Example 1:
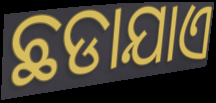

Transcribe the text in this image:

ଛଡାଯାଏ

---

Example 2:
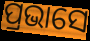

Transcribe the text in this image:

ପ୍ରଭାସେ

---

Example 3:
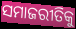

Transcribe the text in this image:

ସମାଜରୀତିକୁ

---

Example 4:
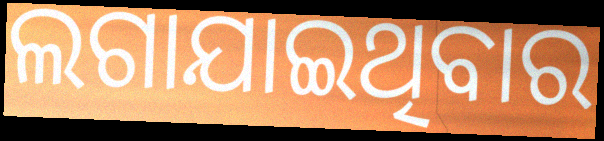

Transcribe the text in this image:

ଲଗାଯାଇଥିବାର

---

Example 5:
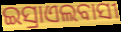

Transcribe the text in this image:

ଇସ୍ରାଏଲବାସୀ